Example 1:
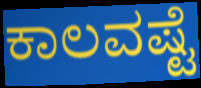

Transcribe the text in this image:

ಕಾಲವಷ್ಟೆ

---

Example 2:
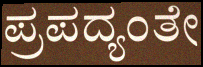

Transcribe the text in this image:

ಪ್ರಪದ್ಯಂತೇ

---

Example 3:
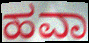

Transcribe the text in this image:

ಹವಾ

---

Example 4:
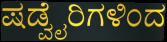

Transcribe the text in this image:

ಷಡ್ವೈರಿಗಳಿಂದ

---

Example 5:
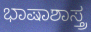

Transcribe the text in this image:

ಭಾಷಾಶಾಸ್ತ್ರ